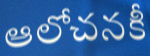
ఆలోచనకీ